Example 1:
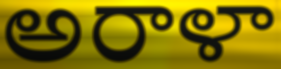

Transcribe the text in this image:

అరాళా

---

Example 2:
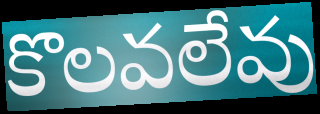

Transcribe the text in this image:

కొలవలేవు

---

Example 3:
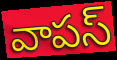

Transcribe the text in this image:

వాపస్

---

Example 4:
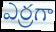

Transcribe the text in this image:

ఎర్రగా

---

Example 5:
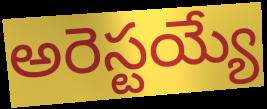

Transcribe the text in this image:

అరెస్టయ్యే